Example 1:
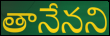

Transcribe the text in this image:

తానేనని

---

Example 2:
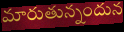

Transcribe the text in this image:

మారుతున్నందున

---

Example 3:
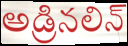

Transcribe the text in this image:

అడ్రినలిన్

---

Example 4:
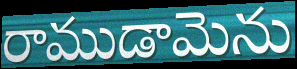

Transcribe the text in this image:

రాముడామెను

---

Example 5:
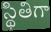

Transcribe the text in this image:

స్థితిగా